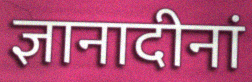
ज्ञानादीनां